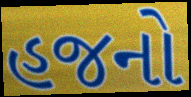
હજનો